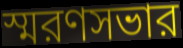
স্মরণসভার